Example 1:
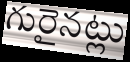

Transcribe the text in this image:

గురైనట్లు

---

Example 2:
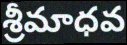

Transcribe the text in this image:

శ్రీమాధవ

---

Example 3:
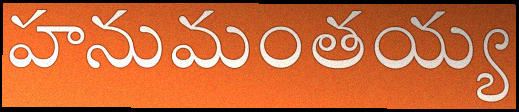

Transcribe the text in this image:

హనుమంతయ్య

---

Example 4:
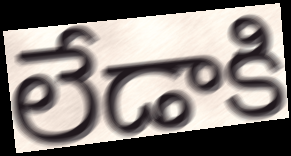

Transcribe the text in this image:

లేడాకి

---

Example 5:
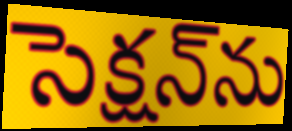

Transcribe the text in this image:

సెక్షన్‌ను